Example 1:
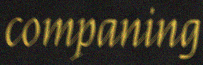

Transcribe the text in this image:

companing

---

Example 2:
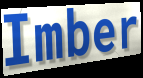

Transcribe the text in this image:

Imber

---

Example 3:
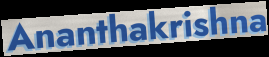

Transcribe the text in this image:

Ananthakrishna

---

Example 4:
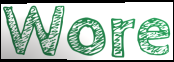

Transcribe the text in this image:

Wore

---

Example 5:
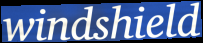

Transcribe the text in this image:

windshield